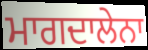
ਮਾਗਦਾਲੇਨਾ